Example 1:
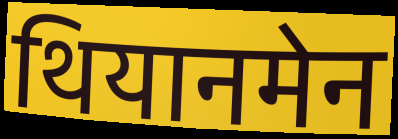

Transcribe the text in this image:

थियानमेन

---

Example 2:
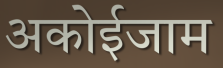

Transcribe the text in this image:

अकोईजाम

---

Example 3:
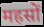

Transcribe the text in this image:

महसों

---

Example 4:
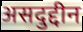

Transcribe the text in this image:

असदुद्दीन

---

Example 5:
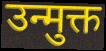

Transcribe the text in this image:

उन्मुक्त